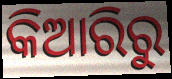
କିଆରିରୁ